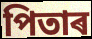
পিতাৰ